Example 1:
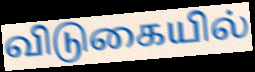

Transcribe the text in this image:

விடுகையில்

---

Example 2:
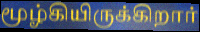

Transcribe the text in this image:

மூழ்கியிருக்கிறார்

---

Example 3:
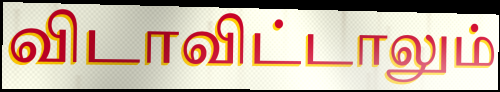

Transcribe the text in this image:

விடாவிட்டாலும்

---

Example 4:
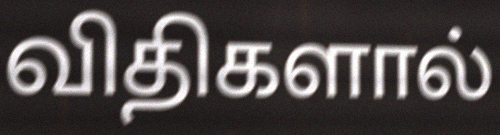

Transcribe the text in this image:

விதிகளால்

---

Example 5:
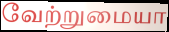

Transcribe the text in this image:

வேற்றுமையா